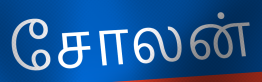
சோலன்